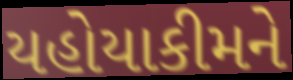
યહોયાકીમને